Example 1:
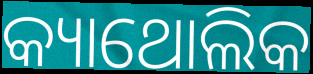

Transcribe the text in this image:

କ୍ୟାଥୋଲିକ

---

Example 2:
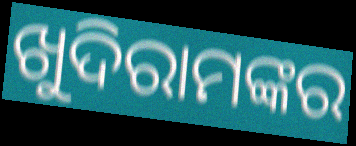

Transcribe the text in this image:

ଖୁଦିରାମଙ୍କର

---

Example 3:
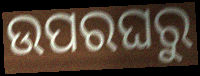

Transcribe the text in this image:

ଉପରଘରୁ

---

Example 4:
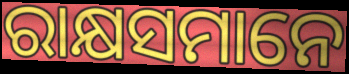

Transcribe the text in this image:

ରାକ୍ଷସମାନେ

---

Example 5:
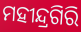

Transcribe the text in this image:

ମହୀନ୍ଦ୍ରଗିରି